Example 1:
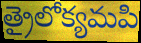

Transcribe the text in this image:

త్రైలోక్యమపి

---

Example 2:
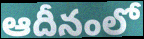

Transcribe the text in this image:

ఆదీనంలో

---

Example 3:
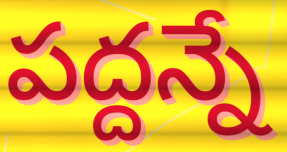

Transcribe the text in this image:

పద్దన్నే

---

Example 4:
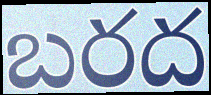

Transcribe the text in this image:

బరద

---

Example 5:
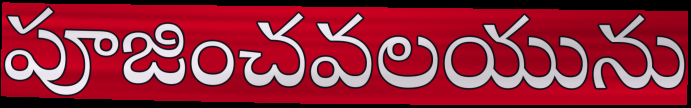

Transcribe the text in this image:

పూజించవలయును